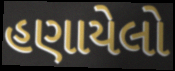
હણાયેલો